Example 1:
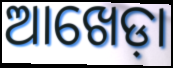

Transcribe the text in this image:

ଆଖେଡ଼ା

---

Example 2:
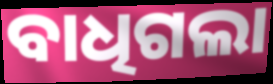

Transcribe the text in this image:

ବାଧିଗଲା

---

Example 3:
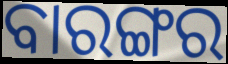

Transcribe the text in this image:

ବାରଙ୍ଗର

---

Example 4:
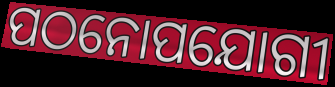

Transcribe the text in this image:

ପଠନୋପଯୋଗୀ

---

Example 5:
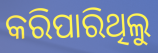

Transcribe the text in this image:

କରିପାରିଥିଲୁ